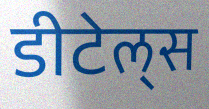
डीटेल्स